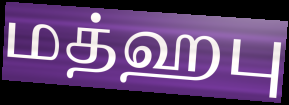
மத்ஹபு